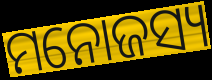
ମନୋଜସ୍ୟ